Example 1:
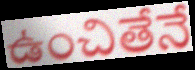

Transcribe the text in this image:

ఉంచితేనే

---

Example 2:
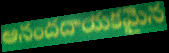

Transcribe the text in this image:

ఆనందదాయకమైన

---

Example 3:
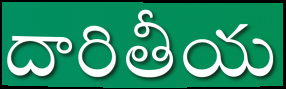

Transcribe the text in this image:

దారితీయ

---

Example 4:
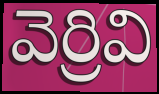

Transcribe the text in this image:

వెర్రివి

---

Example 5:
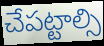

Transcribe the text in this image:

చేపట్టాల్సి